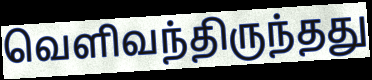
வெளிவந்திருந்தது